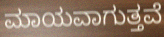
ಮಾಯವಾಗುತ್ತವೆ